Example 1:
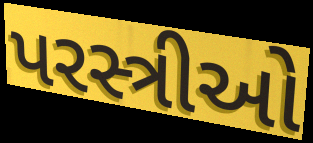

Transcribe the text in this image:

પરસ્ત્રીઓ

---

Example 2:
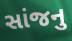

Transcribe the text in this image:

સાંજનુ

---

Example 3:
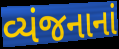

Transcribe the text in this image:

વ્યંજનાનાં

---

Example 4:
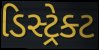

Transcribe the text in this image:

ડિસ્ટ્રેક્ટ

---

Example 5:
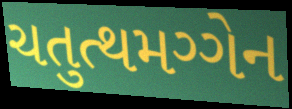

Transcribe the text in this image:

ચતુત્થમગ્ગેન